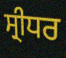
ਸ੍ਰੀਧਰ